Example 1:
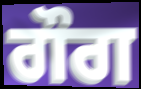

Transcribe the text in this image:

ਗੌਗ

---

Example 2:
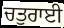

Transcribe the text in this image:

ਚਤੁਰਾਈ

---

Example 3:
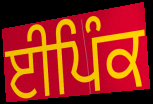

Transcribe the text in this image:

ਈਪਿੰਕ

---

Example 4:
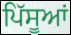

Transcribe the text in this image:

ਪਿੱਸੂਆਂ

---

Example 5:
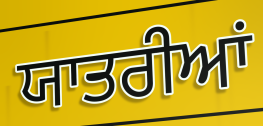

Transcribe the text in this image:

ਯਾਤਰੀਆਂ